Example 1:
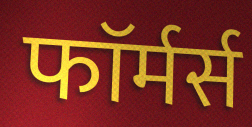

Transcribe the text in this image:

फॉर्मर्स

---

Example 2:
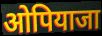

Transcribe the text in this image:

ओपियाजा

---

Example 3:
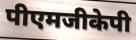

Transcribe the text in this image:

पीएमजीकेपी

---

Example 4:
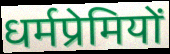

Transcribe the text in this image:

धर्मप्रेमियों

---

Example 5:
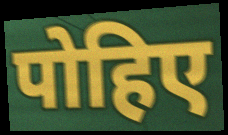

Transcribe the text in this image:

पोहिए